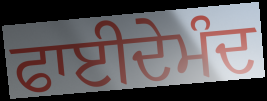
ਫਾਈਦੇਮੰਦ